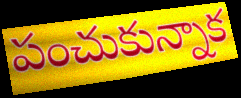
పంచుకున్నాక